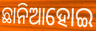
ଛାନିଆହୋଇ